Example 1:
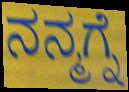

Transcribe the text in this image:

ನನ್ಮಗ್ನೆ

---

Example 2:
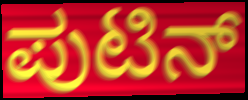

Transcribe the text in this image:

ಪುಟಿನ್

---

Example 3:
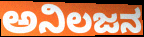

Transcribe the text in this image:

ಅನಿಲಜನ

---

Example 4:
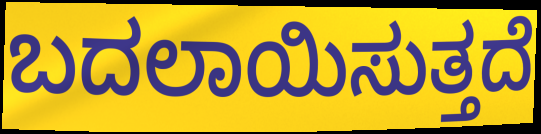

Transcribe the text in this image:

ಬದಲಾಯಿಸುತ್ತದೆ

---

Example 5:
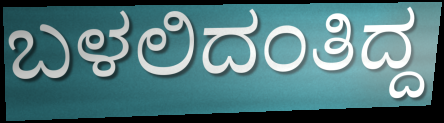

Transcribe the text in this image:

ಬಳಲಿದಂತಿದ್ದ